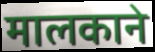
मालकाने